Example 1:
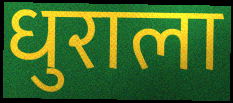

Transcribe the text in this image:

धुराला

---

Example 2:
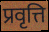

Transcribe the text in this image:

प्रवृत्ति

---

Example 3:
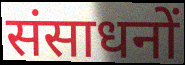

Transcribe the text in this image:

संसाधनों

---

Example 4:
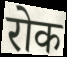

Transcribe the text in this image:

रोक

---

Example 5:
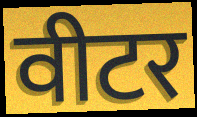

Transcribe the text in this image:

वीटर